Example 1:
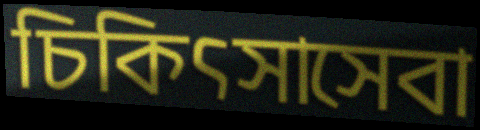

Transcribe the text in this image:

চিকিৎসাসেবা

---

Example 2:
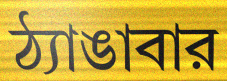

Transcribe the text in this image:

ঠ্যাঙাবার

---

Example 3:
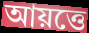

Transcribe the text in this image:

আয়ত্তে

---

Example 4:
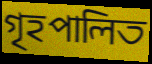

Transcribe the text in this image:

গৃহপালিত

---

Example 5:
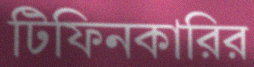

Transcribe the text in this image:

টিফিনকারির